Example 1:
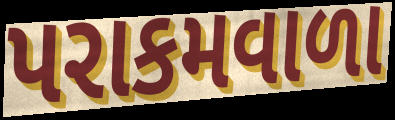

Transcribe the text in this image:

પરાકમવાળા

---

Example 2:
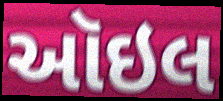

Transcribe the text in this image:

ઑઇલ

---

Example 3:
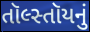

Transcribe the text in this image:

તૉલ્સ્તૉયનું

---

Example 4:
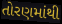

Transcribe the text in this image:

તોરણમાંથી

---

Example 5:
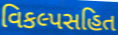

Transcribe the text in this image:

વિકલ્પસહિત